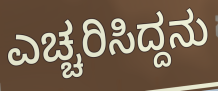
ಎಚ್ಚರಿಸಿದ್ದನು